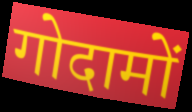
गोदामों